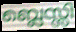
ബ്ലെസ്സി